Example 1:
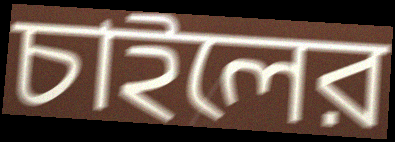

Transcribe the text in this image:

চাইলের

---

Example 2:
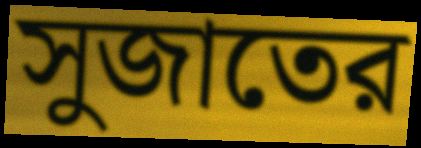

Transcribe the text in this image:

সুজাতের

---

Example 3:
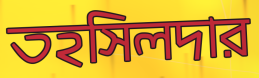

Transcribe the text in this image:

তহসিলদার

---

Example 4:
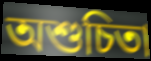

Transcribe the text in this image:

অশুচিতা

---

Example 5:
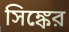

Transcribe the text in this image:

সিঙ্কের